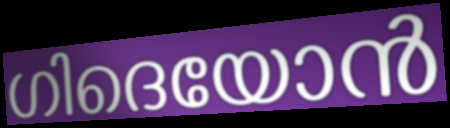
ഗിദെയോൻ